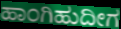
ಹಾಂಗಿಹುದೀಗ